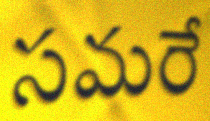
సమరే